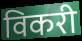
विकरी